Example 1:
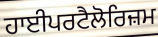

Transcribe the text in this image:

ਹਾਈਪਰਟੈਲੋਰਿਜ਼ਮ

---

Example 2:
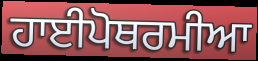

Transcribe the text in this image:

ਹਾਈਪੋਥਰਮੀਆ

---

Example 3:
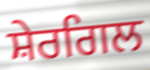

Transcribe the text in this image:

ਸ਼ੇਰਗਿਲ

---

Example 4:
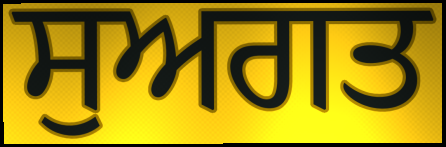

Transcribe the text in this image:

ਸੁਅਗਤ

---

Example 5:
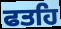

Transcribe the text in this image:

ਫਤਹਿ